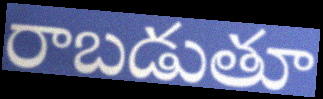
రాబడుతూ